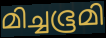
മിച്ചഭൂമി